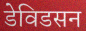
डेविडसन